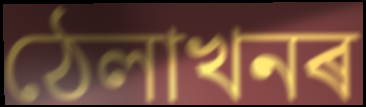
ঠেলাখনৰ